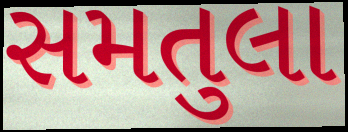
સમતુલા